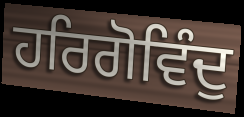
ਹਰਿਗੋਵਿੰਦੁ